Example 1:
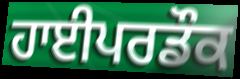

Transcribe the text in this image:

ਹਾਈਪਰਡੌਕ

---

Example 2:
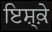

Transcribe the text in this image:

ਇਸ਼੍ਕ਼ੇ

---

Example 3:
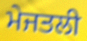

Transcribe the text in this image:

ਮੇਜਤਲੀ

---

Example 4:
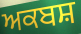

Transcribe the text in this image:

ਅਕਬਸ਼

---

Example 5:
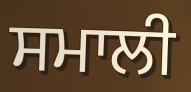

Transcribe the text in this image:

ਸਮਾਲੀ